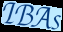
IBAs